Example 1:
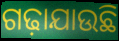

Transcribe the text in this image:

ଗଢ଼ାଯାଉଛି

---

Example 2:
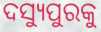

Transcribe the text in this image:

ଦସ୍ୟୁପୁରକୁ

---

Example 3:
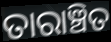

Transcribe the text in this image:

ତାରାଞ୍ଚିତ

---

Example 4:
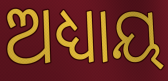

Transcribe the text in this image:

ଅଧ୍ୟାୟ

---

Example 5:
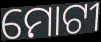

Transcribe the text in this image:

ମୋଟୀ